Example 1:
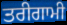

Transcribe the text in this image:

ਤਰੀਗਾਮੀ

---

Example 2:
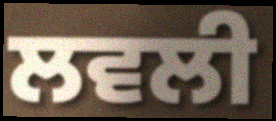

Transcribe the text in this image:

ਲਵਲੀ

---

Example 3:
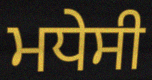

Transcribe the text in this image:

ਮਧੇਸੀ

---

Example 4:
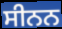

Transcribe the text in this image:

ਸੀਨਨ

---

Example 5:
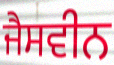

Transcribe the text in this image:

ਜੈਸਵੀਨ